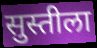
सुस्तीला